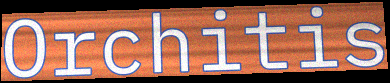
Orchitis